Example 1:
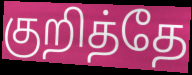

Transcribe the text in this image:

குறித்தே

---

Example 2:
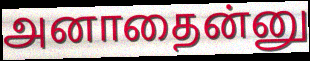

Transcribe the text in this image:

அனாதைன்னு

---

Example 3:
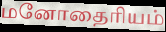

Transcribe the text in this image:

மனோதைரியம்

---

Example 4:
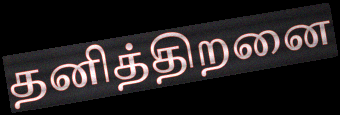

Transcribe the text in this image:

தனித்திறனை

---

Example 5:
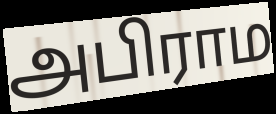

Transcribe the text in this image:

அபிராம